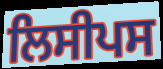
ਲਿਸੀਪਸ